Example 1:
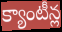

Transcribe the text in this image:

క్యాంటీన్ల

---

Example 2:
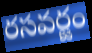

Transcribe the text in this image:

రసవర్జం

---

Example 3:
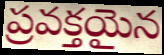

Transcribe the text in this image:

ప్రవక్తయైన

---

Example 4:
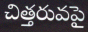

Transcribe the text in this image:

చిత్తరువపై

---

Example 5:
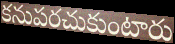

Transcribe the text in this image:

కనుపరచుకుంటారు